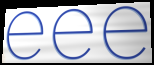
eee